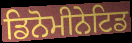
ਡਿਨੋਮੀਨੇਟਿਡ